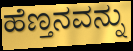
ಹೆಣ್ತನವನ್ನು